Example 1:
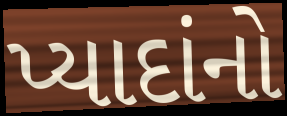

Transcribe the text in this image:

પ્યાદાંનો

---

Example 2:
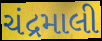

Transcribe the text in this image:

ચંદ્રમાલી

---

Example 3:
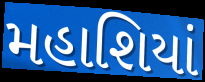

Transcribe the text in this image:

મહાશિયાં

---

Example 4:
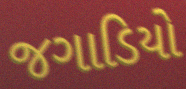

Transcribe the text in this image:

જગાડિયો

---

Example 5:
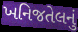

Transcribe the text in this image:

ખનિજતેલનું